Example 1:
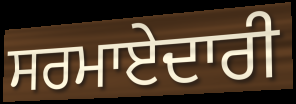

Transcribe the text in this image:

ਸਰਮਾਏਦਾਰੀ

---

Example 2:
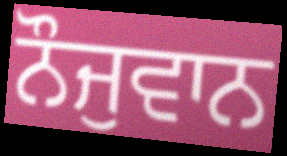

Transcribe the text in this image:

ਨੌਜੁਵਾਨ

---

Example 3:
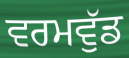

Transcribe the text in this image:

ਵਰਮਵੁੱਡ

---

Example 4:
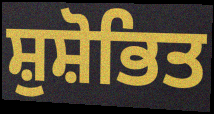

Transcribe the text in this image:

ਸ਼ੁਸ਼ੋਭਿਤ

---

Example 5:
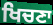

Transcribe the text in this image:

ਖਿਚਣਾ